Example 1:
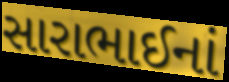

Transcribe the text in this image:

સારાભાઈનાં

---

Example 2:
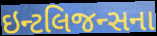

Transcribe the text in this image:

ઇન્ટલિજન્સના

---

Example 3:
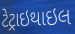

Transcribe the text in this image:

ટેટ્રાઇથાઇલ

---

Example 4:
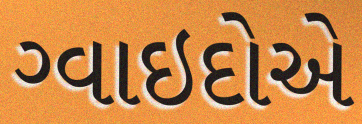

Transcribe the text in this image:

ગ્વાઇદોએ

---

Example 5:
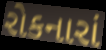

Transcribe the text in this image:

રોકનારાં